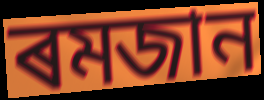
ৰমজান